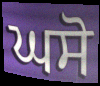
ਘਸੋ